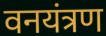
वनयंत्रण